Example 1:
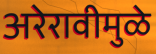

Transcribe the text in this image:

अरेरावीमुळे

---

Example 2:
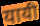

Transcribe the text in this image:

यायी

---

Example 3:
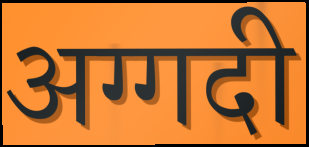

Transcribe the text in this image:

अग्गदी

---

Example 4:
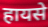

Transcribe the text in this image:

हायसे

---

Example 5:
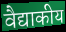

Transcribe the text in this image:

वैद्याकीय